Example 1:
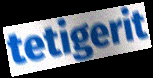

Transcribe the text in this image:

tetigerit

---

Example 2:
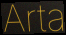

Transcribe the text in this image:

Arta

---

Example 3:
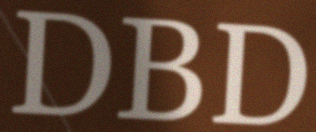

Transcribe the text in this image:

DBD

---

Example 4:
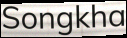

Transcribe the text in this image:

Songkha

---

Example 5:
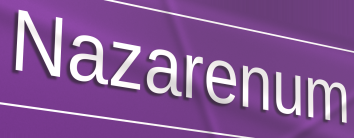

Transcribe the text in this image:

Nazarenum